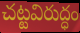
చట్టవిరుద్ధం